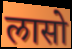
लासो